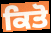
ਕਿਤੋ